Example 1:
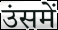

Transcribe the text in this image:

उंसमें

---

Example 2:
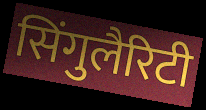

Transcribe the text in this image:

सिंगुलैरिटी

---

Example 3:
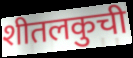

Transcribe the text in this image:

शीतलकुची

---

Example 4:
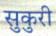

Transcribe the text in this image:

सुकुरी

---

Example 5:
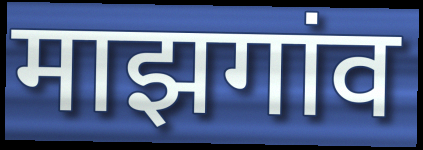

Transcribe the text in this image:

माझगांव